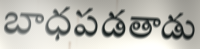
బాధపడతాడు